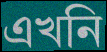
এখনি